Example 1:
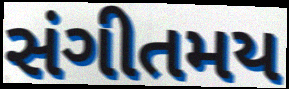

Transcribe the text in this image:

સંગીતમય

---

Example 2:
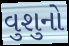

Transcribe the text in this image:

વુશુનો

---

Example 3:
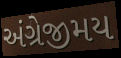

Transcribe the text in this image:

અંગ્રેજીમય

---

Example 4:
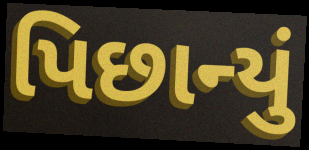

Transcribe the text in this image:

પિછાન્યું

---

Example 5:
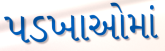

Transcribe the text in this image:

પડખાઓમાં